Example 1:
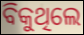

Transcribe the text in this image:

ବିକୁଥିଲେ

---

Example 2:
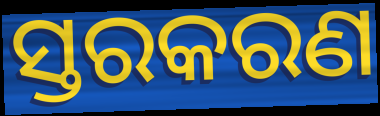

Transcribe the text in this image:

ସ୍ତରକରଣ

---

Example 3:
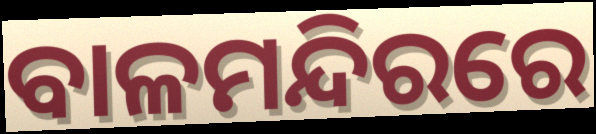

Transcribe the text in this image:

ବାଳମନ୍ଦିରରେ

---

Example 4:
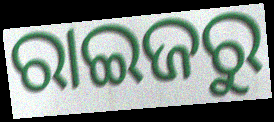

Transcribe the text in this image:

ରାଇଜରୁ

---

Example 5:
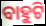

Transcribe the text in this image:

ବାହୁଟି